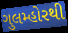
ગુલમ્હોરથી